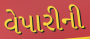
વેપારીની